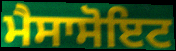
ਮੈਸਾਸੋਇਟ